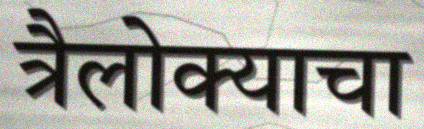
त्रैलोक्याचा